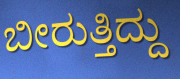
ಬೀರುತ್ತಿದ್ದು